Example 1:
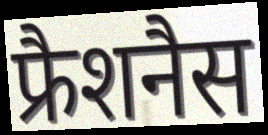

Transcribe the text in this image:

फ्रैशनैस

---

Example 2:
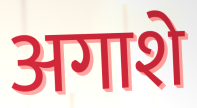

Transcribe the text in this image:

अगाशे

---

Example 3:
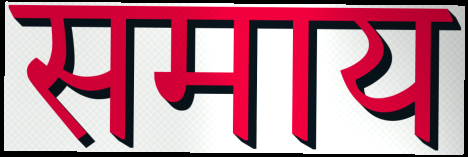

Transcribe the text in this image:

समाय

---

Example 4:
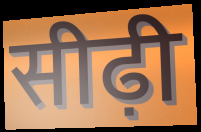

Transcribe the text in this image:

सीढ़ी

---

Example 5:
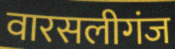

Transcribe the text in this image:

वारसलीगंज